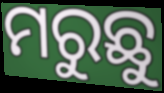
ମରୁଛୁ